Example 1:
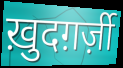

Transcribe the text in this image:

ख़ुदग़र्ज़ी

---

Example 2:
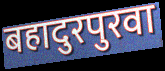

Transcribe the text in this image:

बहादुरपुरवा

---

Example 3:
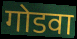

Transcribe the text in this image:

गोडवा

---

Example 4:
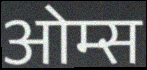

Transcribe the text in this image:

ओम्स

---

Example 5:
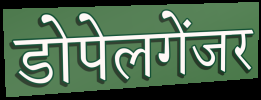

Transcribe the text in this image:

डोपेलगेंजर